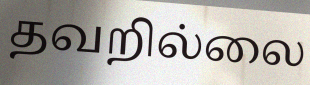
தவறில்லை